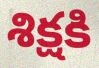
శిక్షకి